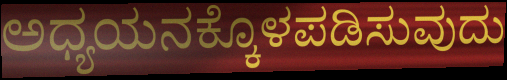
ಅಧ್ಯಯನಕ್ಕೊಳಪಡಿಸುವುದು